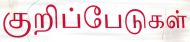
குறிப்பேடுகள்